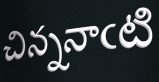
చిన్ననాఁటి